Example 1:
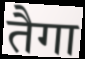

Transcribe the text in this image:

तैगा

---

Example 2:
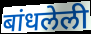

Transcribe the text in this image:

बांधलेली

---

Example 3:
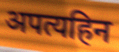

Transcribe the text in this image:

अपत्यहिन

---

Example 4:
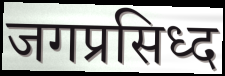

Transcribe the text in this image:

जगप्रसिध्द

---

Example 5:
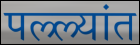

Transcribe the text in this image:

पल्ल्यांत